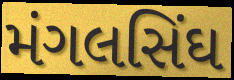
મંગલસિંઘ